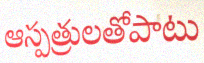
ఆస్పత్రులతోపాటు